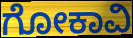
ಗೋಕಾವಿ